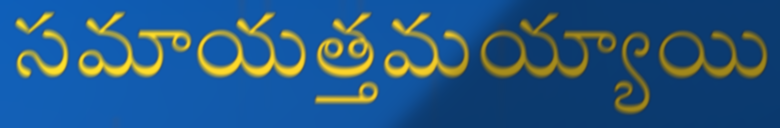
సమాయత్తమయ్యాయి